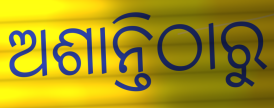
ଅଶାନ୍ତିଠାରୁ